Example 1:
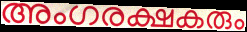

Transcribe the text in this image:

അംഗരക്ഷകരും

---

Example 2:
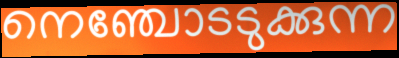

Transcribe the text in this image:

നെഞ്ചോടടുക്കുന്ന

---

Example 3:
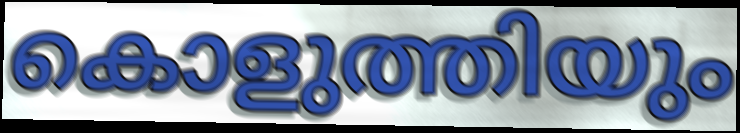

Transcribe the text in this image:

കൊളുത്തിയും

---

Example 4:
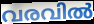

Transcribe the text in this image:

വരവിൽ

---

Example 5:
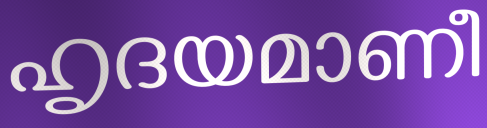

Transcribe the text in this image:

ഹൃദയമാണീ